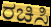
ರಚಿಸಿ